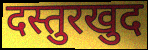
दस्तुरखुद